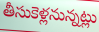
తీసుకెళ్లనున్నట్లు